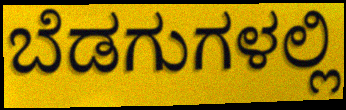
ಬೆಡಗುಗಳಲ್ಲಿ